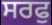
ਸਰਫੁ